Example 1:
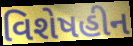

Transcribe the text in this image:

વિશેષહીન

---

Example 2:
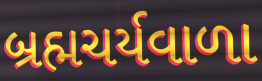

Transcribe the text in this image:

બ્રહ્મચર્યવાળા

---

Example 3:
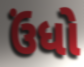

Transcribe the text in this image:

ઉંધો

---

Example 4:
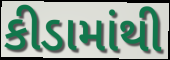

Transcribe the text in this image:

કીડામાંથી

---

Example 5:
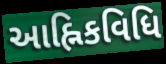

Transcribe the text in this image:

આહ્નિકવિધિ